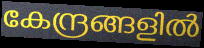
കേന്ദ്രങ്ങളിൽ